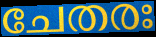
ചേതരഃ